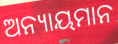
ଅନ୍ୟାୟମାନ